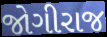
જોગીરાજ